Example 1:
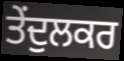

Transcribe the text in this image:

ਤੇਂਦੁਲਕਰ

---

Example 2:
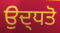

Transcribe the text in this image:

ਉਦ੍ਧਤੋ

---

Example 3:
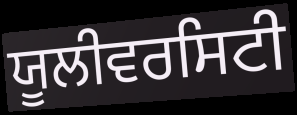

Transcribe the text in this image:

ਯੂਲੀਵਰਸਿਟੀ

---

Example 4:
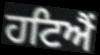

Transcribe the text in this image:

ਹਟਿਐਂ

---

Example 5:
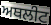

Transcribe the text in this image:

ਅਥਲੀਟ